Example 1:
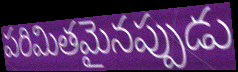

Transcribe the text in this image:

పరిమితమైనప్పుడు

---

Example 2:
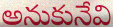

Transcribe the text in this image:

అనుకునేవి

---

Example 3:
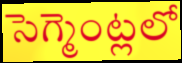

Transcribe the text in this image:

సెగ్మెంట్లలో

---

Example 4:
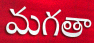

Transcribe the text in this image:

మగతా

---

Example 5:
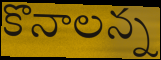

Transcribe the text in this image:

కొనాలన్న